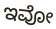
ಇವೋ